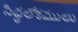
సిద్ధలోకములు